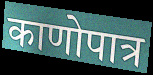
काणोपात्र